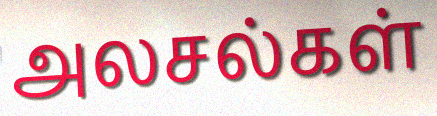
அலசல்கள்